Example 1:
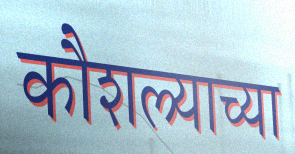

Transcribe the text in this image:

कौशल्याच्या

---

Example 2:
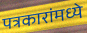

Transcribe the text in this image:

पत्रकारांमध्ये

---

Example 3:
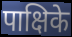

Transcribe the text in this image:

पाक्षिके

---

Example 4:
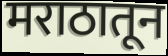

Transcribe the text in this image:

मराठातून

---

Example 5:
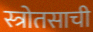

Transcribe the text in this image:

स्त्रोतसाची